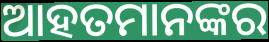
ଆହତମାନଙ୍କର